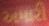
અમારી